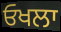
ਓਖਲਾ